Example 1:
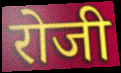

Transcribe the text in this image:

रोजी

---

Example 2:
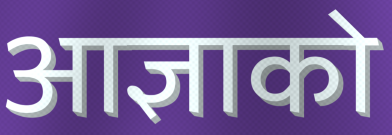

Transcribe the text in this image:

आज्ञाको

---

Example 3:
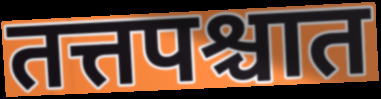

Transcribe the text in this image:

तत्तपश्चात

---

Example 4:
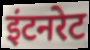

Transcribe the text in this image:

इंटनरेट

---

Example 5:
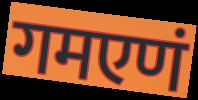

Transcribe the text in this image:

गमएणं